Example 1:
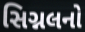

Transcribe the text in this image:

સિગ્નલનો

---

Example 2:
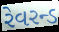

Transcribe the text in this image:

રેવરન્ડ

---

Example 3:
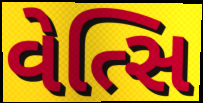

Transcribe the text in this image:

વેત્સિ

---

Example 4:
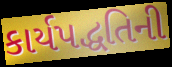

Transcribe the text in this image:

કાર્યપદ્ધતિની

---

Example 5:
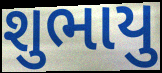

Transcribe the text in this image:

શુભાયુ